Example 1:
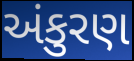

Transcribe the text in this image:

અંકુરણ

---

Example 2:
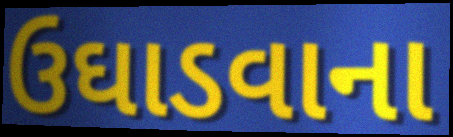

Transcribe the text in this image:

ઉઘાડવાના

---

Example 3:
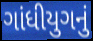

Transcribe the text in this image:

ગાંધીયુગનું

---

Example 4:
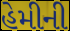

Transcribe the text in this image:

હેમીની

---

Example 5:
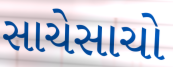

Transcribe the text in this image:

સાચેસાચો